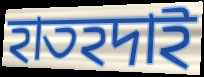
হাতহদাই